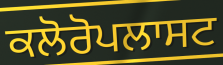
ਕਲੋਰੋਪਲਾਸਟ